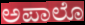
ಅಪಾಲೊ